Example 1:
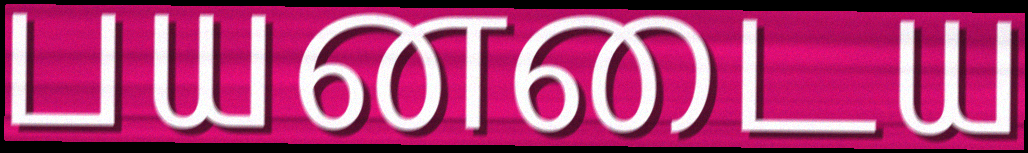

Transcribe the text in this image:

பயனடைய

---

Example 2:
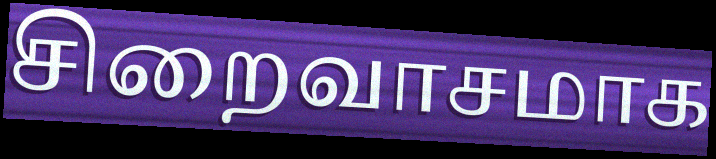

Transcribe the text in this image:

சிறைவாசமாக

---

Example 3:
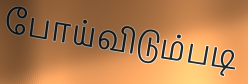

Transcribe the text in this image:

போய்விடும்படி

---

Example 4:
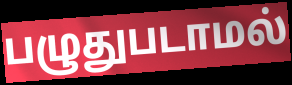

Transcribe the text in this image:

பழுதுபடாமல்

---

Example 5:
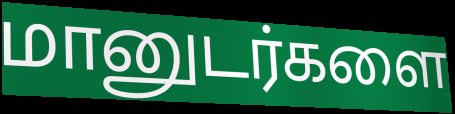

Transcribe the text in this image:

மானுடர்களை